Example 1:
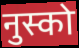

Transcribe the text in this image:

नुस्को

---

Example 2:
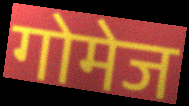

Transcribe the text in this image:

गोमेज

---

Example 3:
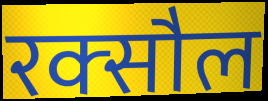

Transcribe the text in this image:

रक्‍सौल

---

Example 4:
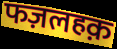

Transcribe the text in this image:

फज़लहक़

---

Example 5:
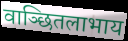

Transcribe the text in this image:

वाञ्छितलाभाय